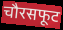
चौरसफूट